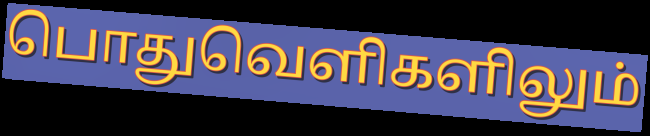
பொதுவெளிகளிலும்